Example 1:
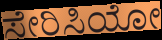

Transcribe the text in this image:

ಸೇರಿಸಿಯೋ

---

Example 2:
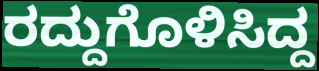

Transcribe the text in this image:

ರದ್ದುಗೊಳಿಸಿದ್ದ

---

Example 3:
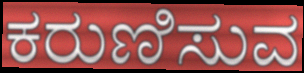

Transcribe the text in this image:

ಕರುಣಿಸುವ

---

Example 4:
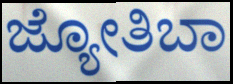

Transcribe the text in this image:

ಜ್ಯೋತಿಬಾ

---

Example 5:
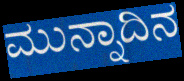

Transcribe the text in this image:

ಮುನ್ನಾದಿನ